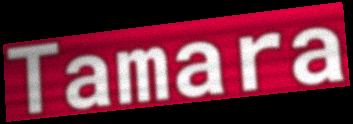
Tamara